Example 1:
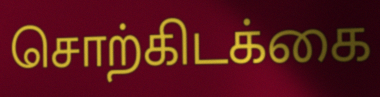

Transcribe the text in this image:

சொற்கிடக்கை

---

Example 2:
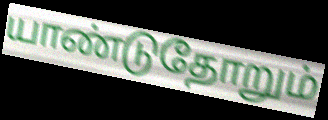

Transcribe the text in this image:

யாண்டுதோறும்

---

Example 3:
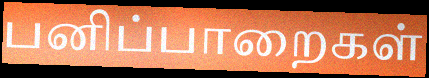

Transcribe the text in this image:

பனிப்பாறைகள்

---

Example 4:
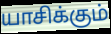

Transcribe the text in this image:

யாசிக்கும்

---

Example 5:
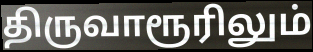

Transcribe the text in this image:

திருவாரூரிலும்